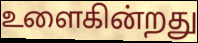
உளைகின்றது